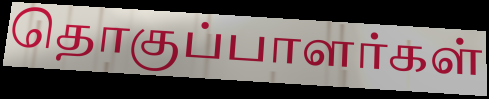
தொகுப்பாளர்கள்